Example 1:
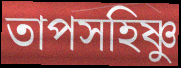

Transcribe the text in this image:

তাপসহিষ্ণু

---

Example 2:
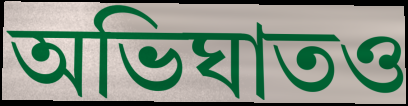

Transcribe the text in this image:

অভিঘাতও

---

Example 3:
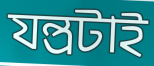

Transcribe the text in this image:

যন্ত্রটাই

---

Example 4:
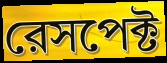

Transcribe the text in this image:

রেসপেক্ট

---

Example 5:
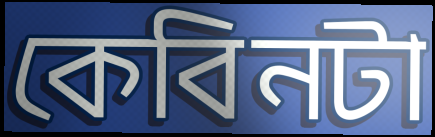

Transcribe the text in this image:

কেবিনটা